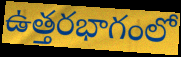
ఉత్తరభాగంలో